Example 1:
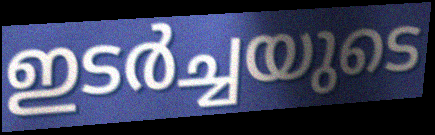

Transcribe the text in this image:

ഇടർച്ചയുടെ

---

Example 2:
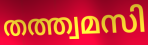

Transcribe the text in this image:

തത്ത്വമസി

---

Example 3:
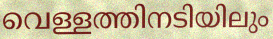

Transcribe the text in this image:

വെള്ളത്തിനടിയിലും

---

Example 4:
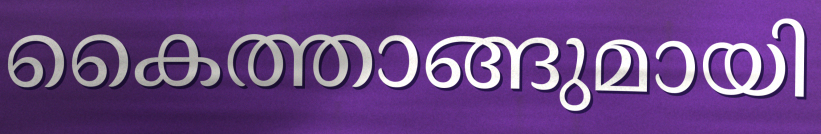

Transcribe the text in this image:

കൈത്താങ്ങുമായി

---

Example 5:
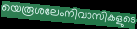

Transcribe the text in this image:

യെരൂശലേംനിവാസികളുടെ